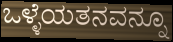
ಒಳ್ಳೆಯತನವನ್ನೂ